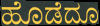
ಹೊಡೆದೂ